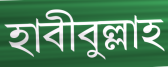
হাবীবুল্লাহ